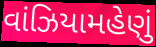
વાંઝિયામહેણું